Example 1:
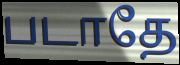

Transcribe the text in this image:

படாதே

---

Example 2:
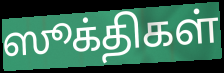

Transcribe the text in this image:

ஸூக்திகள்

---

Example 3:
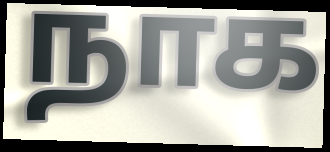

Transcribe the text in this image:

நாக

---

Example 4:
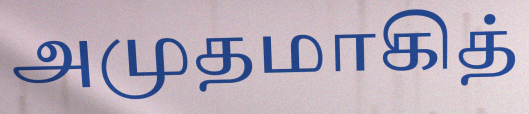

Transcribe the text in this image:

அமுதமாகித்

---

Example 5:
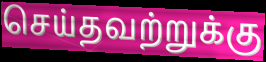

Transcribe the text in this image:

செய்தவற்றுக்கு